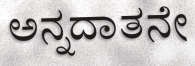
ಅನ್ನದಾತನೇ